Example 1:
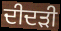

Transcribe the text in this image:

ਦੀਦੜੀ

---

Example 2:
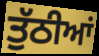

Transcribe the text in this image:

ਤੁੱਠੀਆਂ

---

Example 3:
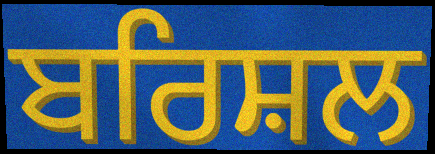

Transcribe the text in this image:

ਬਰਿਸ਼ਲ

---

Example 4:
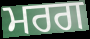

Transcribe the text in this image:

ਮਰਗ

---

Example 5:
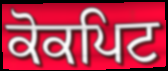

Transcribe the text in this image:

ਕੋਕਪਿਟ